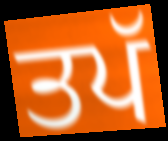
ਤਪੱ